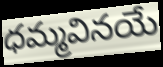
ధమ్మవినయే